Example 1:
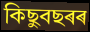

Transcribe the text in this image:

কিছুবছৰৰ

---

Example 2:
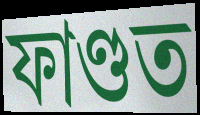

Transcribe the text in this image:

ফাণ্ডত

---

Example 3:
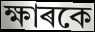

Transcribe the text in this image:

ক্ষাৰকে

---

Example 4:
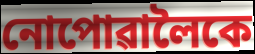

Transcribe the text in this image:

নোপোৱালৈকে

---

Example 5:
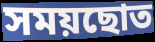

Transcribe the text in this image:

সময়ছোত